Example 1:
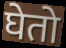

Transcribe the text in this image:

घेतो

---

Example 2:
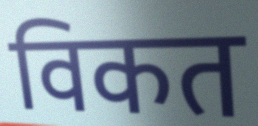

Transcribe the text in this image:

विकत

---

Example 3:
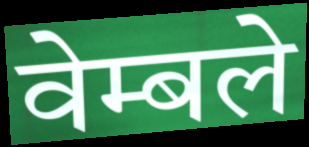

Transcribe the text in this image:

वेम्बले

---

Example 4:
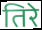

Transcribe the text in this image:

तिरे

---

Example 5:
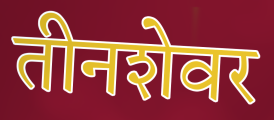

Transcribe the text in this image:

तीनशेवर